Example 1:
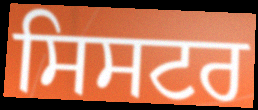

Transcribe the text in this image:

ਸਿਸਟਰ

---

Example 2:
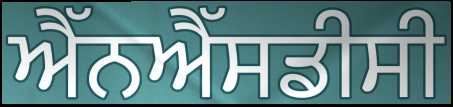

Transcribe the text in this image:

ਐੱਨਐੱਸਡੀਸੀ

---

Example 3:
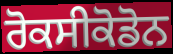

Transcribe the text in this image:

ਰੋਕਸੀਕੋਡੋਨ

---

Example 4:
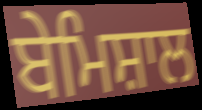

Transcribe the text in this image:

ਬੇਮਿਸ਼ਾਲ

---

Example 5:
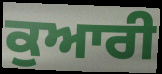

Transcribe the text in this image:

ਕੁਆਰੀ